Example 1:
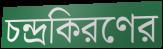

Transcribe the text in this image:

চন্দ্রকিরণের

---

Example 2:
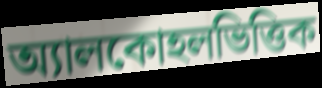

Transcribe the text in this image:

অ্যালকোহলভিত্তিক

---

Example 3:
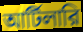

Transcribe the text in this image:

আর্টিলারি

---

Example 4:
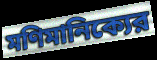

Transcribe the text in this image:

মণিমানিক্যের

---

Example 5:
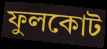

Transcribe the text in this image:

ফুলকোট